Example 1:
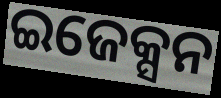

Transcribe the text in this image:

ଇଜେକ୍ସନ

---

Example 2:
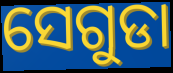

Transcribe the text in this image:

ସେଗୁଡା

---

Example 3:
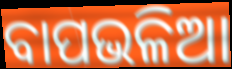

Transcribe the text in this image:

ବାପଭଳିଆ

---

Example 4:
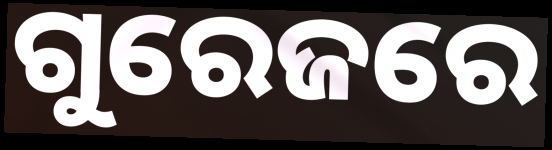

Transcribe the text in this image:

ଗୁରେଜରେ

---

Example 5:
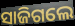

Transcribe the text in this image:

ସାଜିଗଲେ